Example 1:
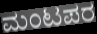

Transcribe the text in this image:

ಮಂಟಪರ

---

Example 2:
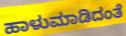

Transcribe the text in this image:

ಹಾಳುಮಾಡಿದಂತೆ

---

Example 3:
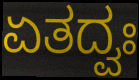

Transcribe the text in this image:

ಏತದ್ವಃ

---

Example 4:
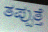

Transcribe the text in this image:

ತಪ್ಪುತ್ತೆ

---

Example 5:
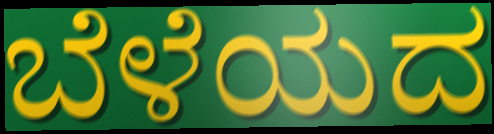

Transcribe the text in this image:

ಬೆಳೆಯದ